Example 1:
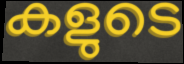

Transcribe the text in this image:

കളുടെ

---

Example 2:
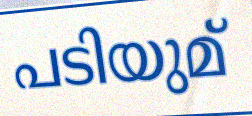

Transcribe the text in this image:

പടിയുമ്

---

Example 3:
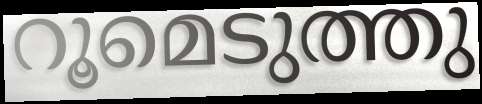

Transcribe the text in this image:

റൂമെടുത്തു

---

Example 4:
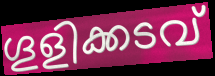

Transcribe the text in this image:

ഗൂളിക്കടവ്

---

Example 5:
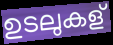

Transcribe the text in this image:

ഉടലുകള്